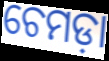
ଚେମଡ଼ା